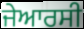
ਜੇਆਰਸੀ